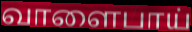
வாளைபாய்